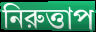
নিরুত্তাপ